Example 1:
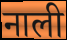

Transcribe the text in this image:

नाली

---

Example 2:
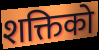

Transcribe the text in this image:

शक्तिको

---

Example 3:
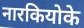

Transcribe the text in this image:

नारकियोके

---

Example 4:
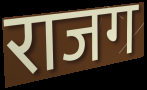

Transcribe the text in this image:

राजग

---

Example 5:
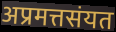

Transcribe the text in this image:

अप्रमत्तसंयत